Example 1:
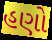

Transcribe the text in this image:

હણો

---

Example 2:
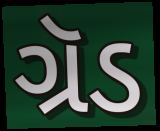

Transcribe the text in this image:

ગ્રૅડ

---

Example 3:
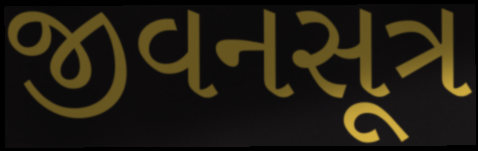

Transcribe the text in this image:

જીવનસૂત્ર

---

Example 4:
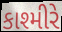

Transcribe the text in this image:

કાશ્મીરે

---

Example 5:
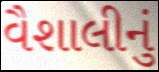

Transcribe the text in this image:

વૈશાલીનું